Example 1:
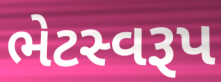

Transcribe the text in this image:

ભેટસ્વરૂપ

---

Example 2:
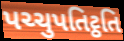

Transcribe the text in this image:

પચ્ચુપતિટ્ઠતિ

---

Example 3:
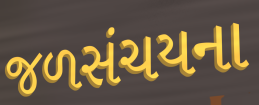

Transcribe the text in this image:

જળસંચયના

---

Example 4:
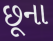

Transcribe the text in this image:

છૂના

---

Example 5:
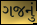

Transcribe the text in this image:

ગજનું